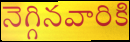
నెగ్గినవారికి